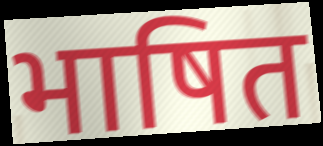
भाषित